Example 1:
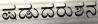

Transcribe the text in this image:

ಷಡುದರುಶನ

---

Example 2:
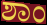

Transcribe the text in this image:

ಶಾಂ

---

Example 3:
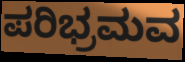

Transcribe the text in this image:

ಪರಿಭ್ರಮವ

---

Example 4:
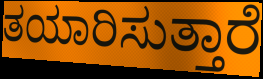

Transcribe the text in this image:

ತಯಾರಿಸುತ್ತಾರೆ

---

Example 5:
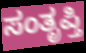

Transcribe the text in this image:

ಸಂತೃಪ್ತಿ